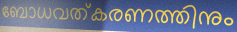
ബോധവത്കരണത്തിനും